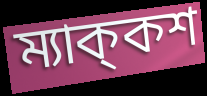
ম্যাক্‌কশ